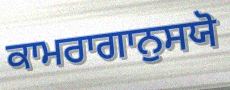
ਕਾਮਰਾਗਾਨੁਸਯੋ